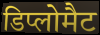
डिप्लोमैट